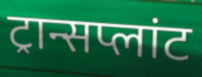
ट्रान्सप्लांट